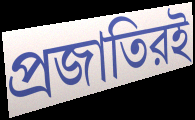
প্রজাতিরই